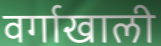
वर्गाखाली